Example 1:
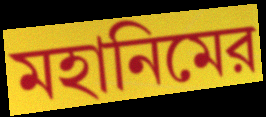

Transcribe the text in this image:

মহানিমের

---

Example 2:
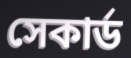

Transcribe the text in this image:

সেকার্ড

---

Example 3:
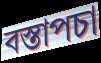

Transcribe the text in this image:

বস্তাপচা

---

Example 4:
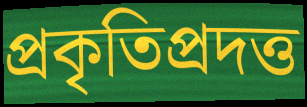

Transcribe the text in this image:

প্রকৃতিপ্রদত্ত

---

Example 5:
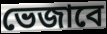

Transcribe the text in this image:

ভেজাবে